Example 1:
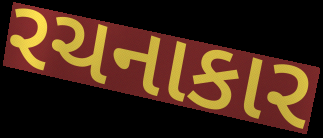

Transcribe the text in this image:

રચનાકાર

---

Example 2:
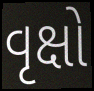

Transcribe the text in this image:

વૃક્ષો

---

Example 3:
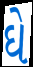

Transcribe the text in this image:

ઘે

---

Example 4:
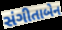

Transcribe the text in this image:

સંગીતાબેન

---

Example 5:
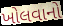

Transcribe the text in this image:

ખોલવાનો